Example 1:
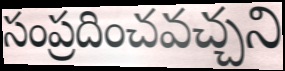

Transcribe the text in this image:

సంప్రదించవచ్చని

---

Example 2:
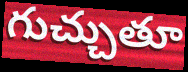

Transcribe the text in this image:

గుచ్చుతూ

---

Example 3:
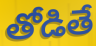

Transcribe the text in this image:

తోడితే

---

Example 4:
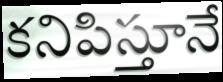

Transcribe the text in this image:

కనిపిస్తూనే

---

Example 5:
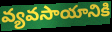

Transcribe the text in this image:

వ్యవసాయానికి